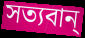
সত্যবান্